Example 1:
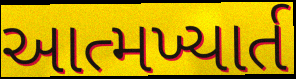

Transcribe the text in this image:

આત્મખ્યાર્ત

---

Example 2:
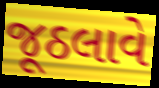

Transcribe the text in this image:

જૂઠલાવે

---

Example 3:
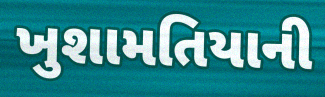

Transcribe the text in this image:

ખુશામતિયાની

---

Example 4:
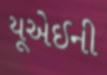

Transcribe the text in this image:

યૂએઈની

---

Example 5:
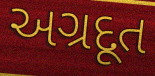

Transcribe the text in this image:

અગ્રદૂત